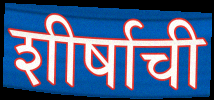
शीर्षाची